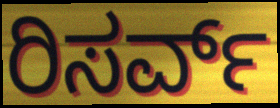
ರಿಸರ್ವ್